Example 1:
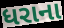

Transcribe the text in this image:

ધરાના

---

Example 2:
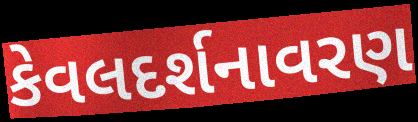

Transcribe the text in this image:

કેવલદર્શનાવરણ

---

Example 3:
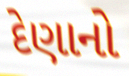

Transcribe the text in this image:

દેણાનો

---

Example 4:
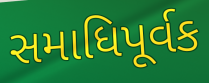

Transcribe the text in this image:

સમાધિપૂર્વક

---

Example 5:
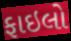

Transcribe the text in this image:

ફાઇલો